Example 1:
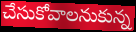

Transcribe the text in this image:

చేసుకోవాలనుకున్న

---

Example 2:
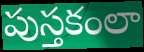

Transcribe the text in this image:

పుస్తకంలా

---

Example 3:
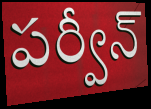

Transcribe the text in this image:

పర్వీన్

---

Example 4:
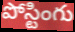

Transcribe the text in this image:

పోస్టింగు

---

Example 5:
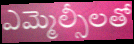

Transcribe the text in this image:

ఎమ్మెల్సీలతో